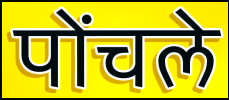
पोंचले